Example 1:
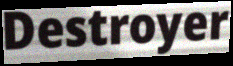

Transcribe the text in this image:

Destroyer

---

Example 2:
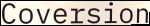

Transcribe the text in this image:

Coversion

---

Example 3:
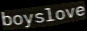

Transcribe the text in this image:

boyslove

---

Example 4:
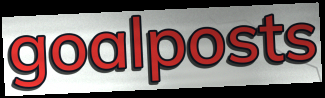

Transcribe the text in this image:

goalposts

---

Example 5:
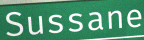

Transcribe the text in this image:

Sussane